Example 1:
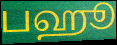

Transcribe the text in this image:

பஹூ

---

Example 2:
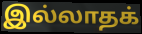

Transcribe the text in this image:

இல்லாதக்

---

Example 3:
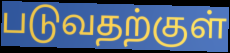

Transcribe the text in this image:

படுவதற்குள்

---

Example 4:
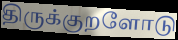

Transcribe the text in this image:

திருக்குறளோடு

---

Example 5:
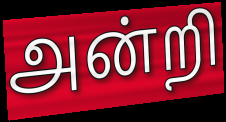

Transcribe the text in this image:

அன்றி